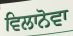
ਵਿਲਾਨੋਵਾ